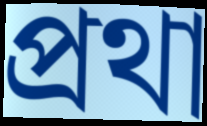
প্রথা